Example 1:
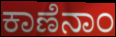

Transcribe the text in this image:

ಕಾಣೆನಾಂ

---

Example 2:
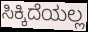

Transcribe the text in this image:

ಸಿಕ್ಕಿದೆಯಲ್ಲ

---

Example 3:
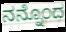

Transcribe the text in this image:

ನನ್ನೊಂದ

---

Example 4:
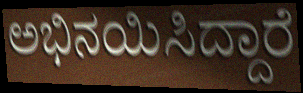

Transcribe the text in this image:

ಅಭಿನಯಿಸಿದ್ದಾರೆ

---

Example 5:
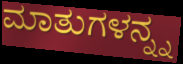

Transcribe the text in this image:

ಮಾತುಗಳನ್ನ್ನ